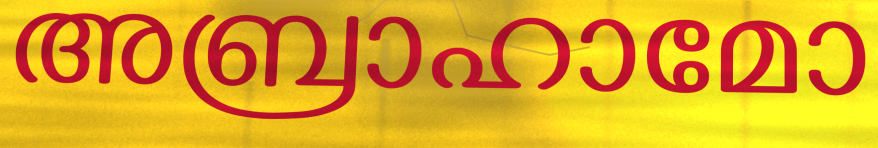
അബ്രാഹാമോ